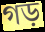
গড়